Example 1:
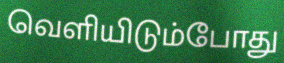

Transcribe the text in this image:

வெளியிடும்போது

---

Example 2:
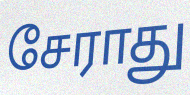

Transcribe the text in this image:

சேராது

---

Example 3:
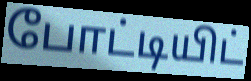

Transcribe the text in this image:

போட்டியிட்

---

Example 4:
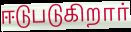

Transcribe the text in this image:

ஈடுபடுகிறார்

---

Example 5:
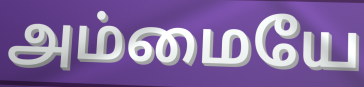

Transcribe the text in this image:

அம்மையே